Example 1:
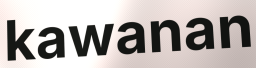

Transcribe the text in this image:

kawanan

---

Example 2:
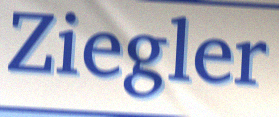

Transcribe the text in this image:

Ziegler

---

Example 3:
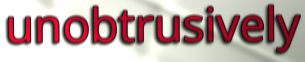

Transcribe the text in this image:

unobtrusively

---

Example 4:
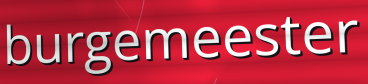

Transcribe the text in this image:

burgemeester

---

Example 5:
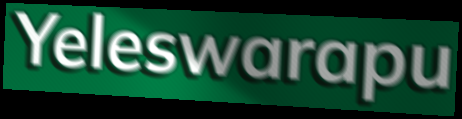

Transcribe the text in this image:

Yeleswarapu